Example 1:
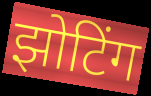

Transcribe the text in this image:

झोटिंग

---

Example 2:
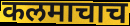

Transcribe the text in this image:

कलमाचाच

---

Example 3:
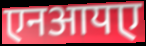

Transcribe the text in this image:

एनआयए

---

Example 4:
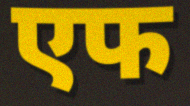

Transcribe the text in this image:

एफ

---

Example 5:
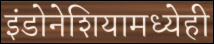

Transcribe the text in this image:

इंडोनेशियामध्येही